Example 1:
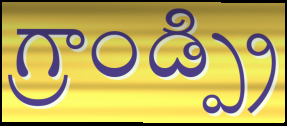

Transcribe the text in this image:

గ్రాండ్ప్రి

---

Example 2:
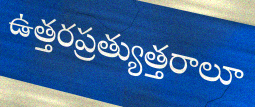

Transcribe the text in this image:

ఉత్తరప్రత్యుత్తరాలూ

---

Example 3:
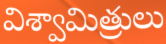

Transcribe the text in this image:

విశ్వామిత్రులు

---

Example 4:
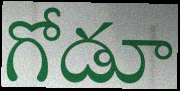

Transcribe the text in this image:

గోడూ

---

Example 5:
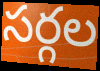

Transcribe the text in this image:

సర్గల